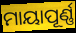
ମାୟାପୂର୍ଣ୍ଣ